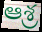
ఆశ్ర